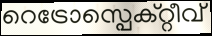
റെട്രോസ്പെക്റ്റീവ്